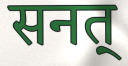
सनत्